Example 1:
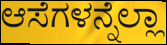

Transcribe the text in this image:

ಆಸೆಗಳನ್ನೆಲ್ಲಾ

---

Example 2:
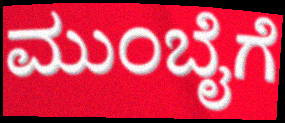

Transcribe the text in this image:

ಮುಂಬೈಗೆ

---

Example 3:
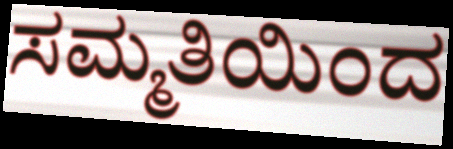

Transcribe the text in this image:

ಸಮ್ಮತಿಯಿಂದ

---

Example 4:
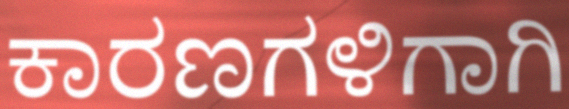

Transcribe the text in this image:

ಕಾರಣಗಳಿಗಾಗಿ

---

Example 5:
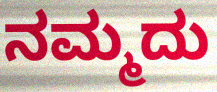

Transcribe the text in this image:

ನಮ್ಮದು